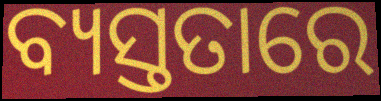
ବ୍ୟସ୍ତତାରେ